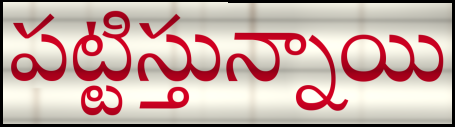
పట్టిస్తున్నాయి